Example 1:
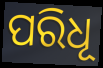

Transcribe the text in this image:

ପରିଧୂ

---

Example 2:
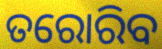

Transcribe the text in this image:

ତରୋରିବ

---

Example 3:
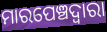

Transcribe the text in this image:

ମାରପେଞ୍ଚଦ୍ବାରା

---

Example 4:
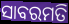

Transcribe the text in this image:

ସାବରମତି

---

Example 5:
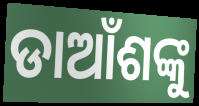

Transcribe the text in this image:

ଡାଆଁଶଙ୍କୁ